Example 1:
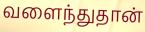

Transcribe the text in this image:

வளைந்துதான்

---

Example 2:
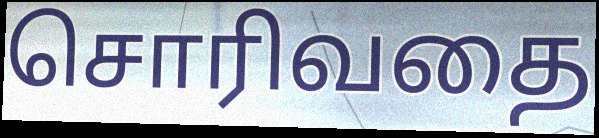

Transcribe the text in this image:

சொரிவதை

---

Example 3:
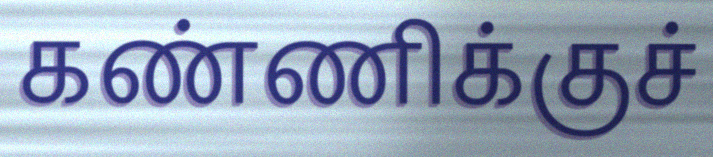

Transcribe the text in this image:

கண்ணிக்குச்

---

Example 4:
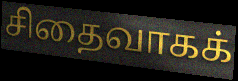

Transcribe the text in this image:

சிதைவாகக்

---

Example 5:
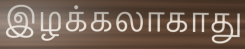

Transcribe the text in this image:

இழக்கலாகாது